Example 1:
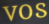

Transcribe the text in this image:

vos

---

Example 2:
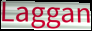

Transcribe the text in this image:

Laggan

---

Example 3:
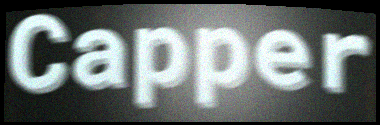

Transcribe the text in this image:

Capper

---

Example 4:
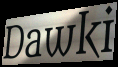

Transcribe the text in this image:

Dawki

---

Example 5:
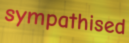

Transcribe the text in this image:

sympathised